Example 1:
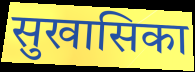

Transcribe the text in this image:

सुखासिका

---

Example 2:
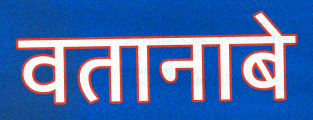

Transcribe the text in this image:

वतानाबे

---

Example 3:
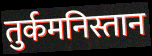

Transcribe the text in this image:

तुर्कमनिस्तान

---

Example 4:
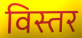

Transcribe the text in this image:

विस्तर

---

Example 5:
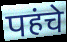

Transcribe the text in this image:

पहंचे